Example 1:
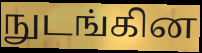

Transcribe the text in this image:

நுடங்கின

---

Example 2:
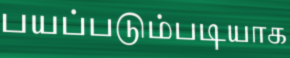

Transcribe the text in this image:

பயப்படும்படியாக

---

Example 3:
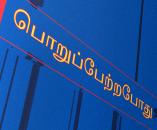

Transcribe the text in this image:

பொறுப்பேற்றபோது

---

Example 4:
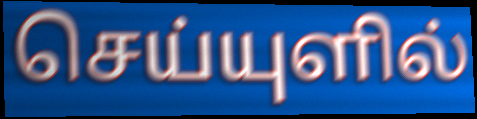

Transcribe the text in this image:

செய்யுளில்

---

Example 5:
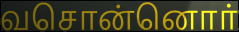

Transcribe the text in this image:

வசொன்னொர்